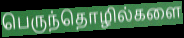
பெருந்தொழில்களை